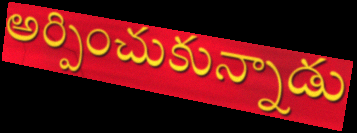
అర్పించుకున్నాడు